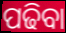
ପଢିବା